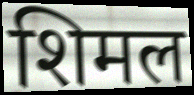
शिमल